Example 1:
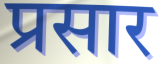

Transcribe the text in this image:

प्रसार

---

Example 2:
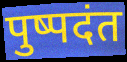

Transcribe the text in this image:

पुष्पदंत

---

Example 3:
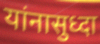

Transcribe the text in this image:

यांनासुध्दा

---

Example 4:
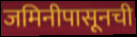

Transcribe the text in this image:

जमिनीपासूनची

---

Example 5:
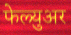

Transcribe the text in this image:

फेल्युअर